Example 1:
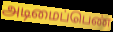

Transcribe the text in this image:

அடிமைப்பெண்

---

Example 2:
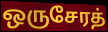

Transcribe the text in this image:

ஒருசேரத்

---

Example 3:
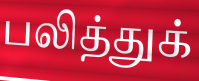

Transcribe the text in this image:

பலித்துக்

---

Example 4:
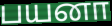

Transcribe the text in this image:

பயனா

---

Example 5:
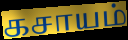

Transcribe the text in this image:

கசாயம்